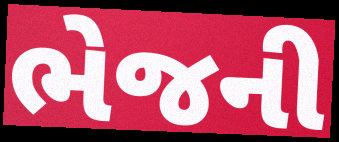
ભેજની